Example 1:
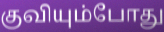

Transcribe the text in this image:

குவியும்போது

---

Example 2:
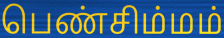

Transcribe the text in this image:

பெண்சிம்மம்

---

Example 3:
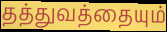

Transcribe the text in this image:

தத்துவத்தையும்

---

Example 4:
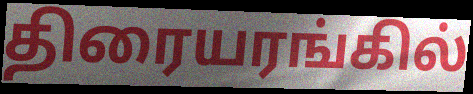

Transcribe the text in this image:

திரையரங்கில்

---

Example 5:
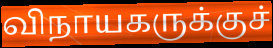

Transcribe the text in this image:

விநாயகருக்குச்